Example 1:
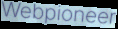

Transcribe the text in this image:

Webpioneer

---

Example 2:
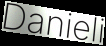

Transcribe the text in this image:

Danieli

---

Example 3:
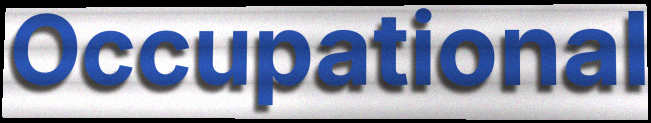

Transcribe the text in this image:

Occupational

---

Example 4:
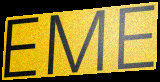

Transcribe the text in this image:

EME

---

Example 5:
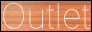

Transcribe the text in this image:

Outlet